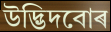
উদ্ভিদবোৰ